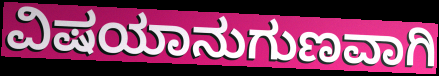
ವಿಷಯಾನುಗುಣವಾಗಿ